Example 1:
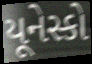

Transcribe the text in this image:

યૂનેસ્કો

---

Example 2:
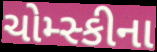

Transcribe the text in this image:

ચોમ્સ્કીના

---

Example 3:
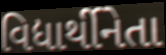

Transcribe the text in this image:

વિદ્યાર્થીનેતા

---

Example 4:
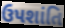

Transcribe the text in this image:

ઉપશાંતિ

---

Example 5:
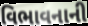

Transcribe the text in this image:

વિભાવનાની